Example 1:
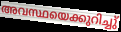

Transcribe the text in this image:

അവസ്ഥയെക്കുറിച്ചു്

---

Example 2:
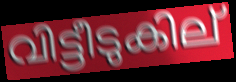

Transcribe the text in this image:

വിട്ടീടുകില്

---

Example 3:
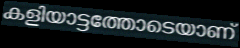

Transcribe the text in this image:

കളിയാട്ടത്തോടെയാണ്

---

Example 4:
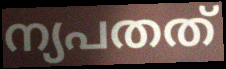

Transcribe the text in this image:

ന്യപതത്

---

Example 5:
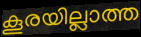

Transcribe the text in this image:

കൂരയില്ലാത്ത